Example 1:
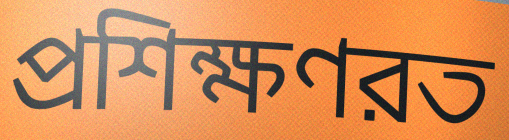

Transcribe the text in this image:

প্রশিক্ষণরত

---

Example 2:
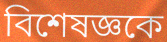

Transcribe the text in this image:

বিশেষজ্ঞকে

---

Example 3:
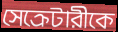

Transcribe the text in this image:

সেক্রেটারীকে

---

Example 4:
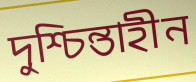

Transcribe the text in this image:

দুশ্চিন্তাহীন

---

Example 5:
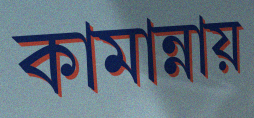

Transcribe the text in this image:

কামান্নায়